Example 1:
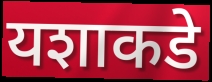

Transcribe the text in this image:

यशाकडे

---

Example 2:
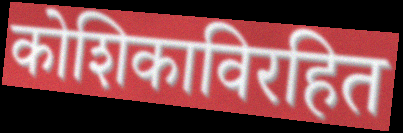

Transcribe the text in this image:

कोशिकाविरहित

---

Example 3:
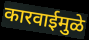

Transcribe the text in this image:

कारवाईमुळे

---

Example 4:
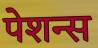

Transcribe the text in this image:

पेशन्स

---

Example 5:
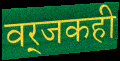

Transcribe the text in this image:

वर्जकही